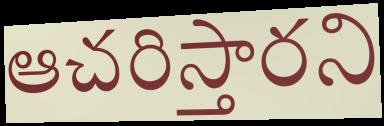
ఆచరిస్తారని